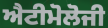
ਐਟੀਮੋਲੋਜੀ